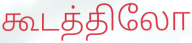
கூடத்திலோ